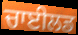
ਚਾਈਲਡ